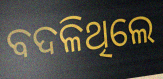
ବଦଳିଥିଲେ